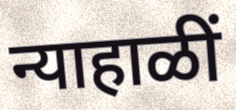
न्याहाळीं